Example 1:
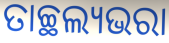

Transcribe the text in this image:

ତାଚ୍ଛଲ୍ୟଭରା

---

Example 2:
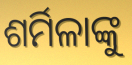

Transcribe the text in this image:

ଶର୍ମିଳାଙ୍କୁ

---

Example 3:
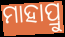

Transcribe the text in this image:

ମାହାପ୍ରୁ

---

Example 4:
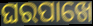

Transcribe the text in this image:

ଘରପାଖେ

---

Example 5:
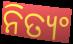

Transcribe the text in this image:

ନିତ୍ୟଂ